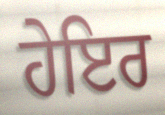
ਹੇਇਰ